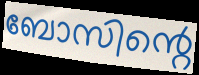
ബോസിന്റെ